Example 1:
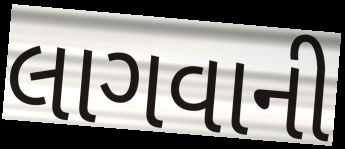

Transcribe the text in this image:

લાગવાની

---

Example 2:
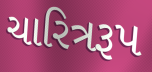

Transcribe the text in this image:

ચારિત્રરૂપ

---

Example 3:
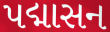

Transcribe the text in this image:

પદ્માસન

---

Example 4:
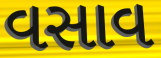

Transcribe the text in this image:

વસાવ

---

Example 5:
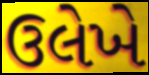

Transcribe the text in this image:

ઉલેખે